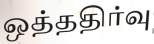
ஒத்ததிர்வு